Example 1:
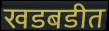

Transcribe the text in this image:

खडबडीत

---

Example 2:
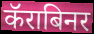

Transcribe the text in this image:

कॅराबिनर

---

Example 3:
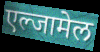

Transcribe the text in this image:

एल्जामेल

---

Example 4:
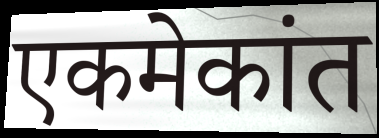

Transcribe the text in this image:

एकमेकांत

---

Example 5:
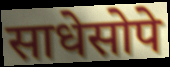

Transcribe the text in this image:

साधेसोपे